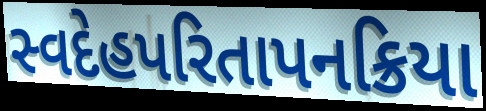
સ્વદેહપરિતાપનક્રિયા